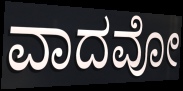
ವಾದವೋ